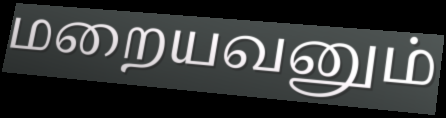
மறையவனும்